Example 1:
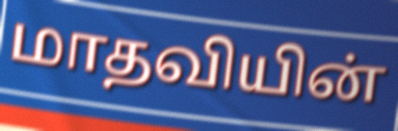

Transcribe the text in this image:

மாதவியின்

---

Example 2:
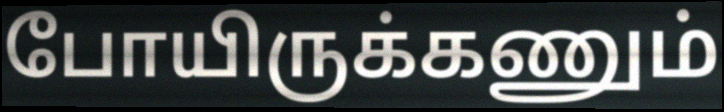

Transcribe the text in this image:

போயிருக்கணும்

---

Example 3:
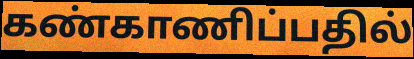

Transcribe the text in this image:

கண்காணிப்பதில்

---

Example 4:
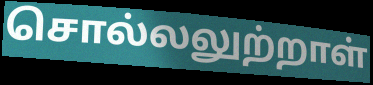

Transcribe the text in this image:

சொல்லலுற்றாள்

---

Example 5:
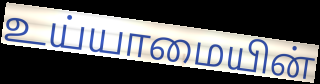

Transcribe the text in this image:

உய்யாமையின்